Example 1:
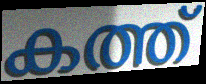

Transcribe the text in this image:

കത്ത്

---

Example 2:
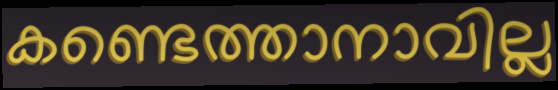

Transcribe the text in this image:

കണ്ടെത്താനാവില്ല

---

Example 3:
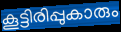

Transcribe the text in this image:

കൂട്ടിരിപ്പുകാരും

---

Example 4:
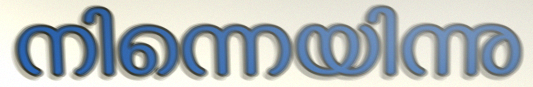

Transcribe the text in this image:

നിന്നെയിന്നു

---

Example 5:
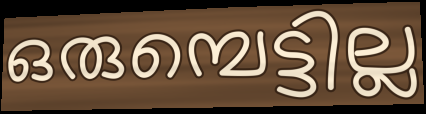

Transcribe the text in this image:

ഒരുമ്പെട്ടില്ല